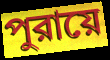
পুরায়ে